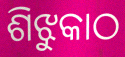
ଶିଝୁକାଠ